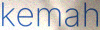
kemah